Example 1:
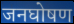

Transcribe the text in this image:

जनघोषण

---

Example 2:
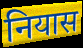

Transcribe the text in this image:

नियास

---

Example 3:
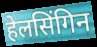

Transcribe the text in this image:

हेलसिंगिन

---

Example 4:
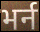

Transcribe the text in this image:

भर्न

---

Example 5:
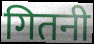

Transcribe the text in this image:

गितनी